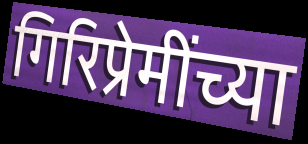
गिरिप्रेमींच्या